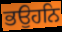
ਭਉਹਨਿ